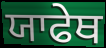
ਯਾਫੇਥ